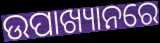
ଉପାଖ୍ୟାନରେ